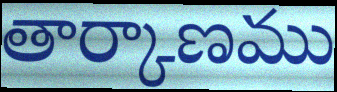
తార్కాణము